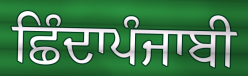
ਛਿੰਦਾਪੰਜਾਬੀ